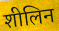
शीलिन